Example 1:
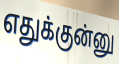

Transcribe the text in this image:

எதுக்குன்னு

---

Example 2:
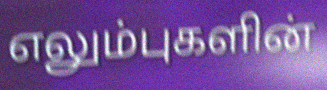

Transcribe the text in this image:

எலும்புகளின்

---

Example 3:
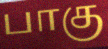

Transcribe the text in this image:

பாகு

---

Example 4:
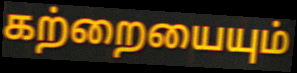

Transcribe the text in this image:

கற்றையையும்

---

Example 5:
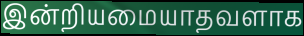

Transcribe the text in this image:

இன்றியமையாதவளாக